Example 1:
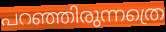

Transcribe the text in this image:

പറഞ്ഞിരുന്നത്രെ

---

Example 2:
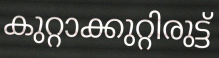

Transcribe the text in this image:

കുറ്റാക്കുറ്റിരുട്ട്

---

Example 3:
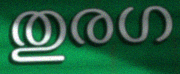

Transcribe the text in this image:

തുരഗ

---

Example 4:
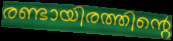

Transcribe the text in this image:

രണ്ടായിരത്തിന്റെ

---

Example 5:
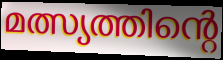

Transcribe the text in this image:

മത്സ്യത്തിന്റെ